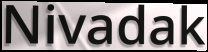
Nivadak